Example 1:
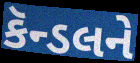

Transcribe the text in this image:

કૅન્ડલને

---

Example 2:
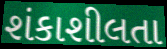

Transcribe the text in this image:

શંકાશીલતા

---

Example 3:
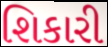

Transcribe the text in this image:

શિકારી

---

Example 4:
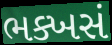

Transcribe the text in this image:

ભક્ખસં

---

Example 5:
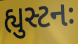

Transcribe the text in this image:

હ્યુસ્ટનઃ